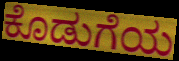
ಕೊಡುಗೆಯ